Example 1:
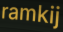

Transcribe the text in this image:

ramkij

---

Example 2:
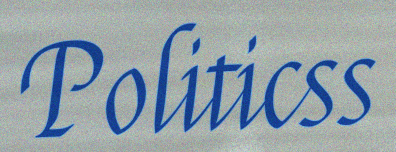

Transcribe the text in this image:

Politicss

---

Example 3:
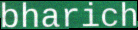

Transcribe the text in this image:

bharich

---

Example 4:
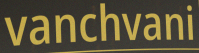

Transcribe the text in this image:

vanchvani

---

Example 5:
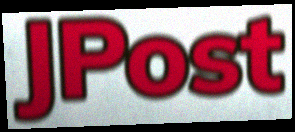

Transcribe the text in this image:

JPost